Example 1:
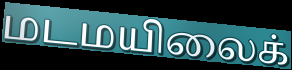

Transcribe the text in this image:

மடமயிலைக்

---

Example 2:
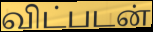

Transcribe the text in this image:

விட்படன்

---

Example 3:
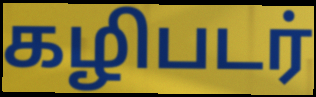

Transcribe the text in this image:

கழிபடர்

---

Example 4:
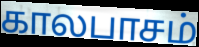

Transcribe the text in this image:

காலபாசம்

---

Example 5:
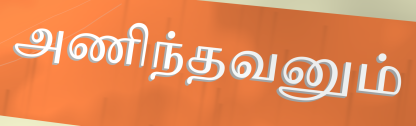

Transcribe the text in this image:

அணிந்தவனும்